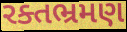
રક્તભ્રમણ